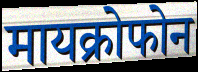
मायक्रोफोन